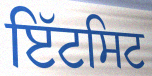
ਇੱਟਸਿਟ